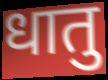
धातु